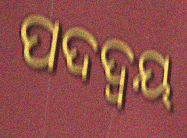
ପଦଦ୍ଵୟ